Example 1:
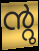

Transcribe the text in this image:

ന്റു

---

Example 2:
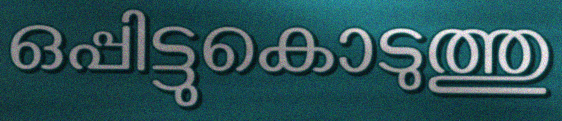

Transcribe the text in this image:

ഒപ്പിട്ടുകൊടുത്തു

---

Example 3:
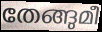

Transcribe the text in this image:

തേങ്ങുമീ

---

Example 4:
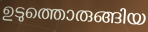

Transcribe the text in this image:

ഉടുത്തൊരുങ്ങിയ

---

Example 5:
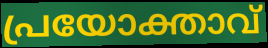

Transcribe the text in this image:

പ്രയോക്താവ്